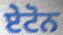
ਏਟੋਨ